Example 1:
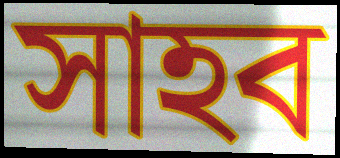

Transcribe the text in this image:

সাহব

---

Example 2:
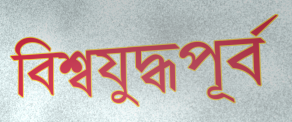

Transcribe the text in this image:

বিশ্বযুদ্ধপূর্ব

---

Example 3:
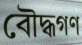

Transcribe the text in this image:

বৌদ্ধগণ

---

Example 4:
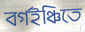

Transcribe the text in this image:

বর্গইঞ্চিতে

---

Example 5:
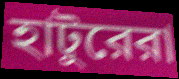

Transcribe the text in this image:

হাটুরেরা